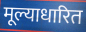
मूल्याधारित